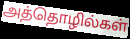
அத்தொழில்கள்